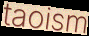
taoism